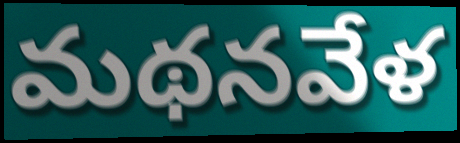
మథనవేళ